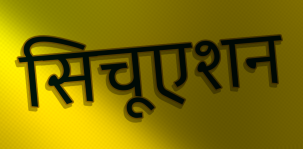
सिचूएशन